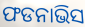
ଫଡନାଭିସ